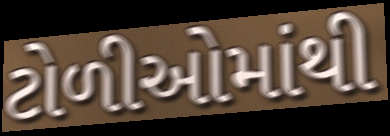
ટોળીઓમાંથી